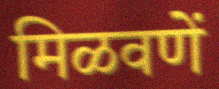
मिळवणें